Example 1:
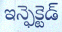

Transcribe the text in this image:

ఇన్ఫెక్టెడ్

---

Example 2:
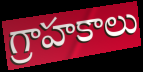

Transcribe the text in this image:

గ్రాహకాలు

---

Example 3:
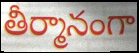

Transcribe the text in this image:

తీర్మానంగా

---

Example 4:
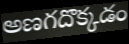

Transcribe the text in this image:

అణగదొక్కడం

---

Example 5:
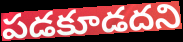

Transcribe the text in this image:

పడకూడదని